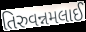
તિરુવન્નમલાઈ